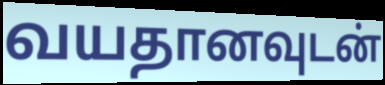
வயதானவுடன்